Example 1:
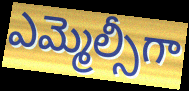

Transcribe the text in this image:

ఎమ్మెల్సీగా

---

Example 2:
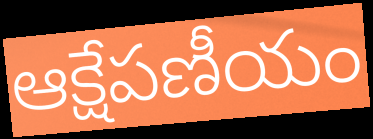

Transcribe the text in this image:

ఆక్షేపణీయం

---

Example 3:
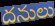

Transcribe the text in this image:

దనులు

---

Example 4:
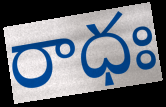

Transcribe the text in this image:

రాధః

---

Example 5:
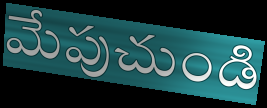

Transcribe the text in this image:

మేపుచుండి